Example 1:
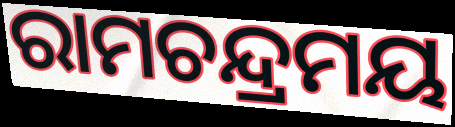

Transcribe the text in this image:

ରାମଚନ୍ଦ୍ରମୟ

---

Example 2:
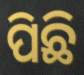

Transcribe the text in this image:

ପିଛି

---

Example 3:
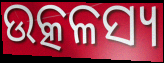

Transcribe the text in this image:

ଉତ୍କଳସ୍ୟ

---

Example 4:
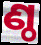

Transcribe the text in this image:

ଣ୍ଠ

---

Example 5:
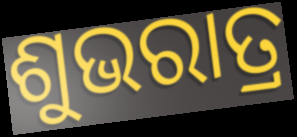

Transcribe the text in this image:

ଶୁଭରାତ୍ର